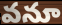
వనూ